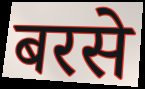
बरसे